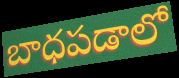
బాధపడాలో